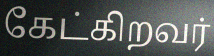
கேட்கிறவர்